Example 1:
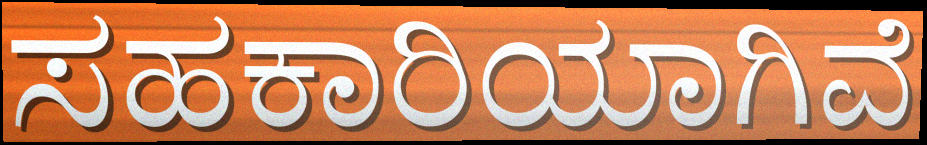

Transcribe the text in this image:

ಸಹಕಾರಿಯಾಗಿವೆ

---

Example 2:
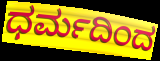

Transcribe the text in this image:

ಧರ್ಮದಿಂದ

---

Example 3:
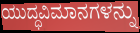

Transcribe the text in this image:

ಯುದ್ಧವಿಮಾನಗಳನ್ನು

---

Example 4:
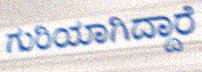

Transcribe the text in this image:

ಗುರಿಯಾಗಿದ್ದಾರೆ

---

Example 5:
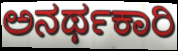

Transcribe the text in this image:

ಅನರ್ಥಕಾರಿ